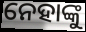
ନେହାଙ୍କୁ